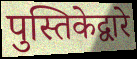
पुस्तिकेद्वारे